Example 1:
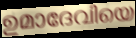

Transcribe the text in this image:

ഉമാദേവിയെ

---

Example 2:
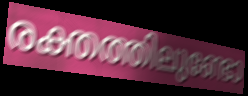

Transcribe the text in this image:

രക്തത്തിലുണ്ടോ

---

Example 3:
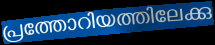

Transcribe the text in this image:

പ്രത്തോറിയത്തിലേക്കു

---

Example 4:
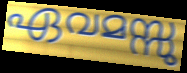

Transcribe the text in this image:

ഏവമസ്സു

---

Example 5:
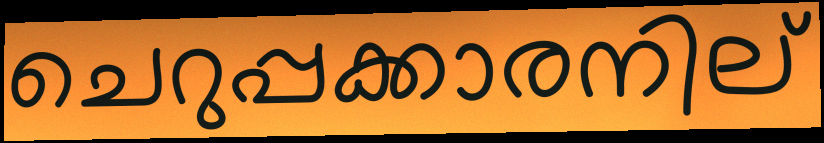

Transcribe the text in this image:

ചെറുപ്പക്കാരനില്